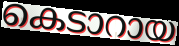
കെടാറായ